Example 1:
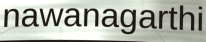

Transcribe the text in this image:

nawanagarthi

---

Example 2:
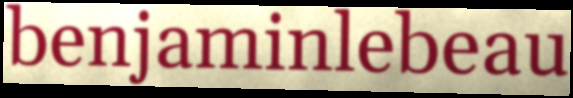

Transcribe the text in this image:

benjaminlebeau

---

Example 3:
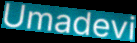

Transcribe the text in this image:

Umadevi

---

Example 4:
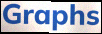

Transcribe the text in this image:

Graphs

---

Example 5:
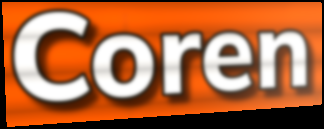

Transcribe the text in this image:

Coren